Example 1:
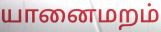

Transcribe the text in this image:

யானைமறம்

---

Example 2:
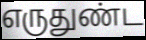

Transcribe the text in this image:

எருதுண்ட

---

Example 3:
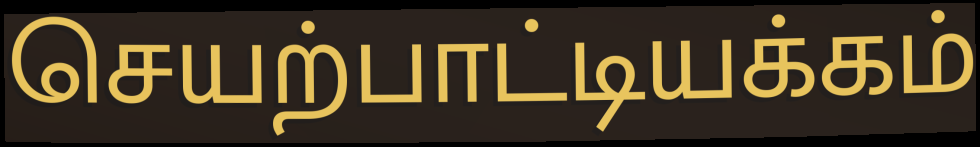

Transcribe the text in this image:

செயற்பாட்டியக்கம்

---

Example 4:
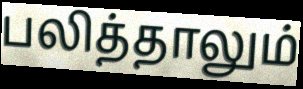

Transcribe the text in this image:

பலித்தாலும்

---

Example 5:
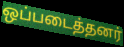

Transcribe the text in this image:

ஒப்படைத்தனர்